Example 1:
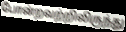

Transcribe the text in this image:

போன்றவற்றிலிருந்து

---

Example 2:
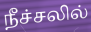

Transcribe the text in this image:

நீச்சலில்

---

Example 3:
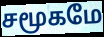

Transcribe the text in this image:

சமூகமே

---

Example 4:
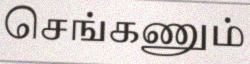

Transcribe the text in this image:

செங்கணும்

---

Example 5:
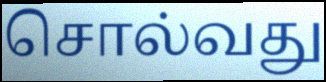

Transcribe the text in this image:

சொல்வது